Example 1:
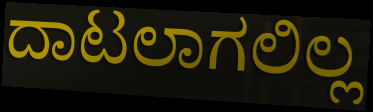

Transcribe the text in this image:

ದಾಟಲಾಗಲಿಲ್ಲ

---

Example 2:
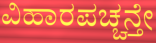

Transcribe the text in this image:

ವಿಹಾರಪಚ್ಚನ್ತೇ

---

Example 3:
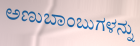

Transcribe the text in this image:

ಅಣುಬಾಂಬುಗಳನ್ನು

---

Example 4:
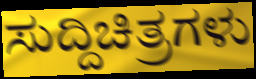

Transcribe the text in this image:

ಸುದ್ದಿಚಿತ್ರಗಳು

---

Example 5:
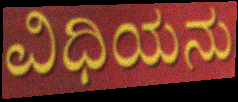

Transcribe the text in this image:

ವಿಧಿಯನು